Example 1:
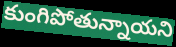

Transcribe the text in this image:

కుంగిపోతున్నాయని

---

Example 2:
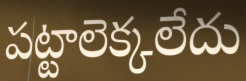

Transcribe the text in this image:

పట్టాలెక్కలేదు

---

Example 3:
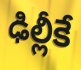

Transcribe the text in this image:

ఢిల్లీకే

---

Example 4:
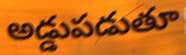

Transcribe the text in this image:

అడ్డుపడుతూ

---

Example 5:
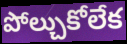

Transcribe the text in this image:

పోల్చుకోలేక